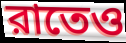
রাতেও